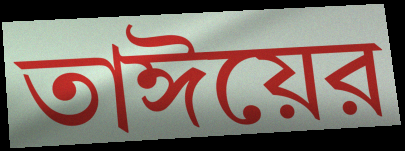
তাঈয়ের